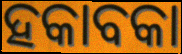
ହକାବକା